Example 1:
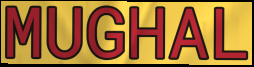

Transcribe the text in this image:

MUGHAL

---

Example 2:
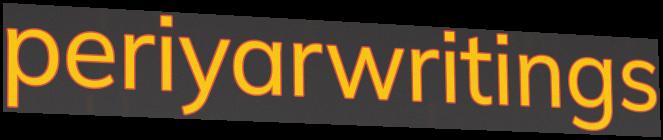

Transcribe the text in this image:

periyarwritings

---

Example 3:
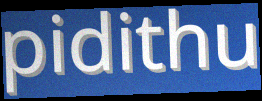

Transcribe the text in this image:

pidithu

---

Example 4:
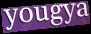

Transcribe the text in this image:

yougya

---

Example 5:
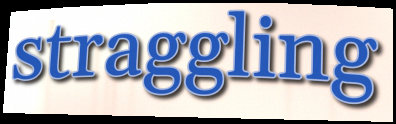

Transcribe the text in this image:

straggling